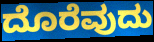
ದೊರೆವುದು